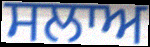
ਸਲਾਅ